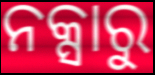
ନକ୍ସାରୁ